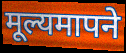
मूल्यमापने